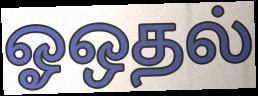
ஓஒதல்